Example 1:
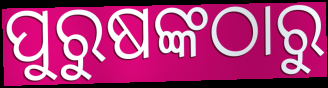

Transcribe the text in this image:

ପୁରୁଷଙ୍କଠାରୁ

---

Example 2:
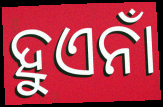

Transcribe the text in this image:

ହୁଏନାଁ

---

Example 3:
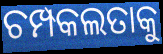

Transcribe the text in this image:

ଚମ୍ପକଲତାକୁ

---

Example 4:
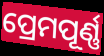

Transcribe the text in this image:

ପ୍ରେମପୂର୍ଣ୍ଣ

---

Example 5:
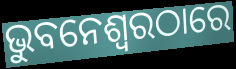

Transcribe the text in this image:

ଭୁବନେଶ୍ଵରଠାରେ